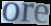
ore